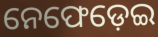
ନେଫେଡ଼େଇ